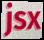
jsx